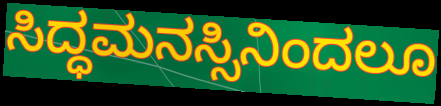
ಸಿದ್ಧಮನಸ್ಸಿನಿಂದಲೂ